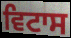
ਵਿਟਾਸ